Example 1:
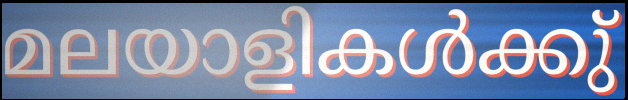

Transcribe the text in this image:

മലയാളികൾക്കു്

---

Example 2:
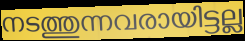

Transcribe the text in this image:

നടത്തുന്നവരായിട്ടല്ല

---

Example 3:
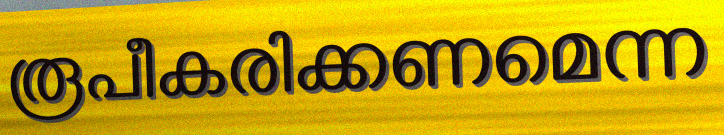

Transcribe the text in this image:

രൂപീകരിക്കണമെന്ന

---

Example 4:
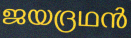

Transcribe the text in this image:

ജയദ്രഥൻ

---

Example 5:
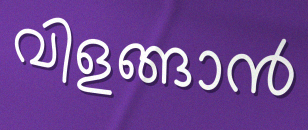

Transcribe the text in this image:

വിളങ്ങാൻ